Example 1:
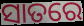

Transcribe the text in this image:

ସାତରେ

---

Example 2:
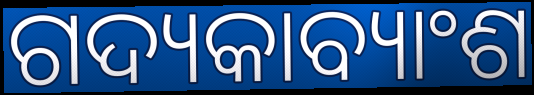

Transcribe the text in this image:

ଗଦ୍ୟକାବ୍ୟାଂଶ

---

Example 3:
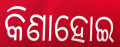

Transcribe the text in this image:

କିଣାହୋଇ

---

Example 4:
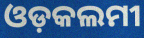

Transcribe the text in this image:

ଓଡ଼କଲମୀ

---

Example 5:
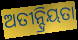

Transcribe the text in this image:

ଅତୀନ୍ଦ୍ରିୟତା